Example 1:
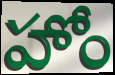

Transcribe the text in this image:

హోం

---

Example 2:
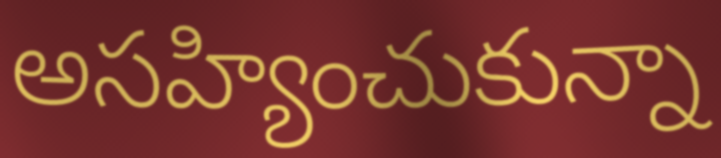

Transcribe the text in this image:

అసహ్యించుకున్నా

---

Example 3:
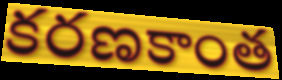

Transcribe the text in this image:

కరణకాంత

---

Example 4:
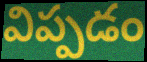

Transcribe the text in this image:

విప్పడం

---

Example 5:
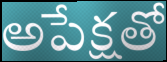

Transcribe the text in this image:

అపేక్షతో